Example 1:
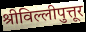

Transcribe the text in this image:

श्रीविल्लीपुत्तूर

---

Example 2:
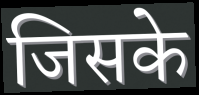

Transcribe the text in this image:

जिसके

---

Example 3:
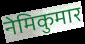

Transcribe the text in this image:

नेमिकुमार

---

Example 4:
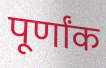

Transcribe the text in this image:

पूर्णांक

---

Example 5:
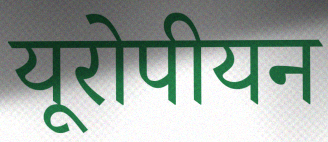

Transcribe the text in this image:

यूरोपीयन